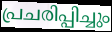
പ്രചരിപ്പിച്ചും